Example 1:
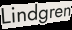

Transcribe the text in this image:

Lindgren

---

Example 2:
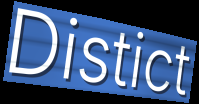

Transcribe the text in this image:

Distict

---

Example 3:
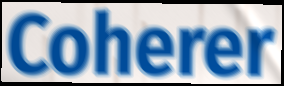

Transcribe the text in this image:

Coherer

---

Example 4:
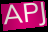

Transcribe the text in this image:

APJ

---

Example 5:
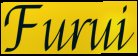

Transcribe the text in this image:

Furui